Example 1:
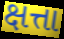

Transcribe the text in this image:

ક્ષત્તા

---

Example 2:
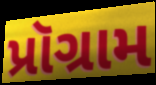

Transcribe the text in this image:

પ્રૉગ્રામ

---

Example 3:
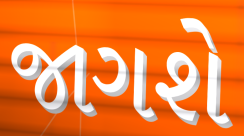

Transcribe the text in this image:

જાગશે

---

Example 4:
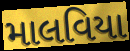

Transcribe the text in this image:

માલવિયા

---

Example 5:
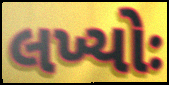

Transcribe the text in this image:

લખ્યોઃ